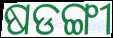
ଷଡଙ୍ଗୀ